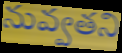
నువ్వతని